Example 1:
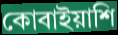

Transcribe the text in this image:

কোবাইয়াশি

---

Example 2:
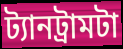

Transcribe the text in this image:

ট্যানট্রামটা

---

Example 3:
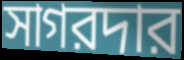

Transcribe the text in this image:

সাগরদার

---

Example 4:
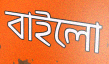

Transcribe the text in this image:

বাইলো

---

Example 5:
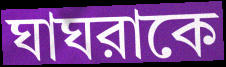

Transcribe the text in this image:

ঘাঘরাকে